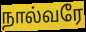
நால்வரே